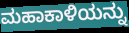
ಮಹಾಕಾಳಿಯನ್ನು